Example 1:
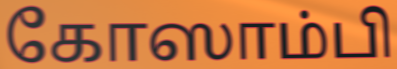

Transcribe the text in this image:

கோஸாம்பி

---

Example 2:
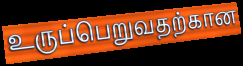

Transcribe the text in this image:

உருப்பெறுவதற்கான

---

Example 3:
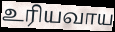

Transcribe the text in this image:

உரியவாய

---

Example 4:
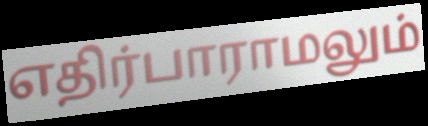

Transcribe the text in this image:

எதிர்பாராமலும்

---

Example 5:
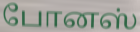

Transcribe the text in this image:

போனஸ்